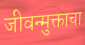
जीवन्मुक्ताचा